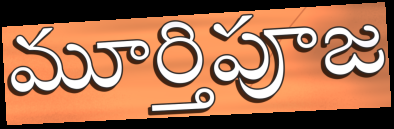
మూర్తిపూజ